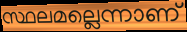
സ്ഥലമല്ലെന്നാണ്